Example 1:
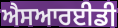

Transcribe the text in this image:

ਐਸਆਰਈਡੀ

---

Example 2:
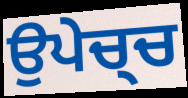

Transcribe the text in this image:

ਉਪੇਚ੍ਚ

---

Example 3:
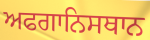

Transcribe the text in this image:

ਅਫਗਾਨਿਸਥਾਨ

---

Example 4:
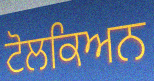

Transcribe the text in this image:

ਟੋਲਕਿਅਨ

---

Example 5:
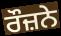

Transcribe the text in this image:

ਰੌਜ਼ਨੇ